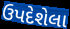
ઉપદેશેલા